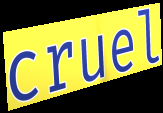
cruel